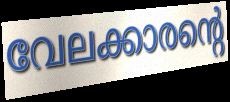
വേലക്കാരന്റെ